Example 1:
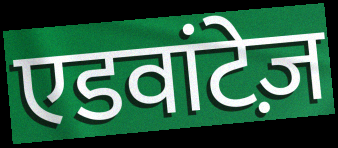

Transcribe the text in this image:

एडवांटेज़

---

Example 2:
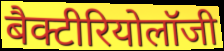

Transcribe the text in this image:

बैक्टीरियोलॉजी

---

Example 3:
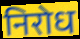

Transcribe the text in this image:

निरोध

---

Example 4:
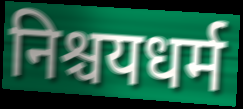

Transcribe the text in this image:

निश्चयधर्म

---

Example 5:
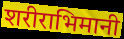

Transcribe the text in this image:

शरीराभिमानी